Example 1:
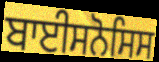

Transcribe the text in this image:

ਬਾਈਸਨੋਸਿਸ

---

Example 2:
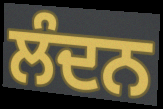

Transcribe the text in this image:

ਲੰਦਨ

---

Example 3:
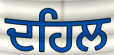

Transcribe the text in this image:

ਦਹਿਲ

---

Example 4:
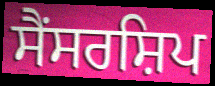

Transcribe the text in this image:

ਸੈਂਸਰਸ਼ਿਪ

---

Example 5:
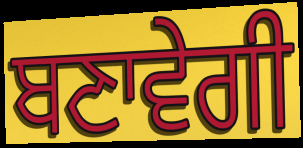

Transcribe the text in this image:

ਬਣਾਵੇਗੀ